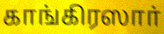
காங்கிரஸார்